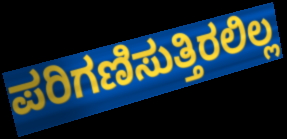
ಪರಿಗಣಿಸುತ್ತಿರಲಿಲ್ಲ